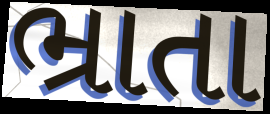
ભ્રાતા